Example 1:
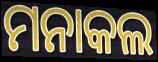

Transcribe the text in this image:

ମନାକଲ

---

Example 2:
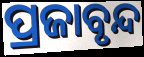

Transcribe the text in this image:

ପ୍ରଜାବୃନ୍ଦ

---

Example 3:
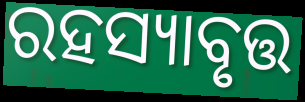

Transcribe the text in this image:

ରହସ୍ୟାବୃତ୍ତ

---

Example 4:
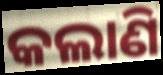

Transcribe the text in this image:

କଲାଣି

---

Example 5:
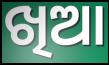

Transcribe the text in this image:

ଖିଆ